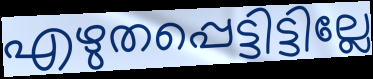
എഴുതപ്പെട്ടിട്ടില്ലേ